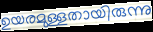
ഉയരമുള്ളതായിരുന്നു